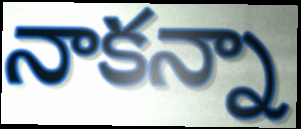
నాకన్నా